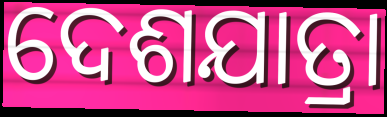
ଦେଶଯାତ୍ରା